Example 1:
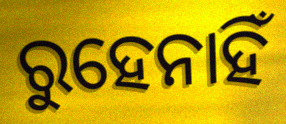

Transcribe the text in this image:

ରୁହେନାହିଁ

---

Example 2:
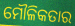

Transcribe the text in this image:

ମୌଳିକତାର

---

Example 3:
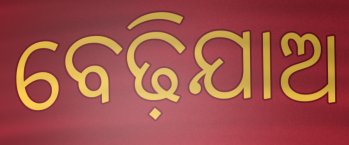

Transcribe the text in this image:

ବେଢ଼ିଯାଅ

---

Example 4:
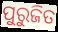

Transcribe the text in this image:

ପୁରୁଜିତ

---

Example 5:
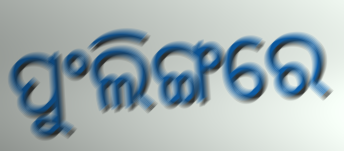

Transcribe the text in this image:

ପୁଂଲିଙ୍ଗରେ